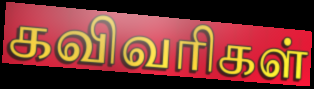
கவிவரிகள்